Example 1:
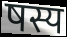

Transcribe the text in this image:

षस्य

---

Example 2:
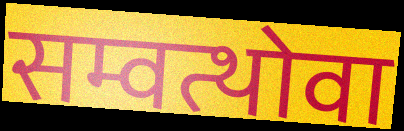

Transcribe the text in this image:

सम्वत्थोवा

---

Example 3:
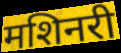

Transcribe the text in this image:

मशिनरी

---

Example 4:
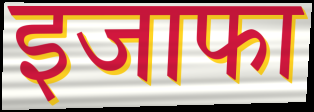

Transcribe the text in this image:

इजाफा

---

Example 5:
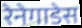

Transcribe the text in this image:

रेनेगाडेस